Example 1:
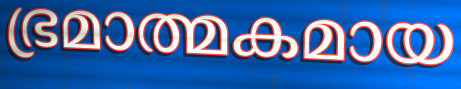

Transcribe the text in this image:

ഭ്രമാത്മകമായ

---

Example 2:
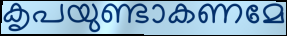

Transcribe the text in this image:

കൃപയുണ്ടാകണമേ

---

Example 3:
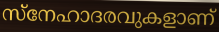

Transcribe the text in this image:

സ്നേഹാദരവുകളാണ്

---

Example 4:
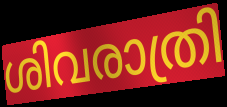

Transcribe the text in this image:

ശിവരാത്രി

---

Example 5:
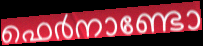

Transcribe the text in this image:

ഫെർനാണ്ടോ